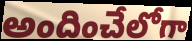
అందించేలోగా